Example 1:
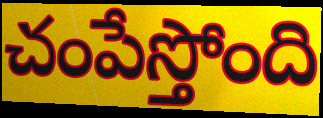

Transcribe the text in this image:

చంపేస్తోంది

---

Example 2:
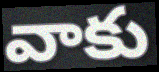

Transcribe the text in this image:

వాకు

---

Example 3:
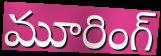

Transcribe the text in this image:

మూరింగ్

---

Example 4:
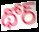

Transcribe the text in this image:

థోర్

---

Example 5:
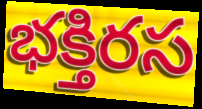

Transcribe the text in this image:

భక్తిరస